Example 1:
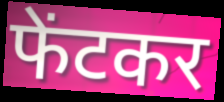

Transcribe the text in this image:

फेंटकर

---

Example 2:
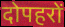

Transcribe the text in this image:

दोपहरों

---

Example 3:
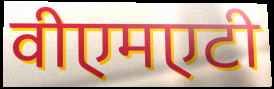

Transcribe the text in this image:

वीएमएटी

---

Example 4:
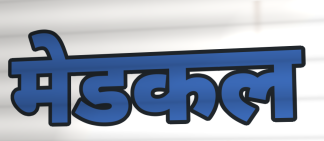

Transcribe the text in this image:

मेडकल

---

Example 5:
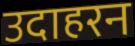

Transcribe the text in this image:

उदाहरन